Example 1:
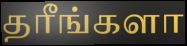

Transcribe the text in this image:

தரீங்களா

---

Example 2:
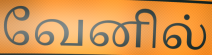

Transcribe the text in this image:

வேனில்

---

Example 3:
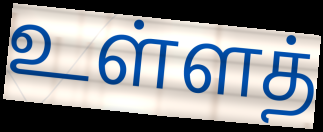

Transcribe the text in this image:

உள்ளத்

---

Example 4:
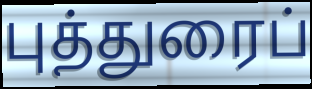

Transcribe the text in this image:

புத்துரைப்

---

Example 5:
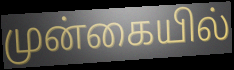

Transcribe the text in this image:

முன்கையில்